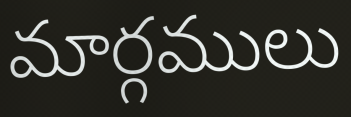
మార్గములు